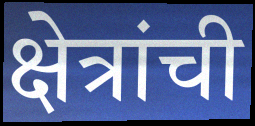
क्षेत्रांची